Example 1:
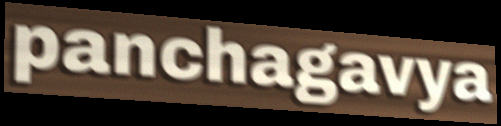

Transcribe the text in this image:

panchagavya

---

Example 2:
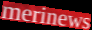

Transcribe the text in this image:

merinews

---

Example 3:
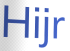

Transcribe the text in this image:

Hijr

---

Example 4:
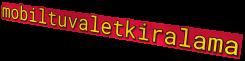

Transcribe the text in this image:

mobiltuvaletkiralama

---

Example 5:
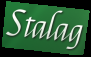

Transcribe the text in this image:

Stalag